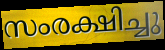
സംരക്ഷിച്ചു